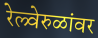
रेल्वेरुळांवर